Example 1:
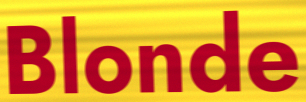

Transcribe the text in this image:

Blonde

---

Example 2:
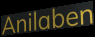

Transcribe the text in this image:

Anilaben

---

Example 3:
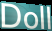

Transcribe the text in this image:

Doll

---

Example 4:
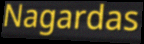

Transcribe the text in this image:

Nagardas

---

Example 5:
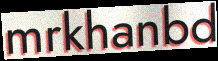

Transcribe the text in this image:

mrkhanbd